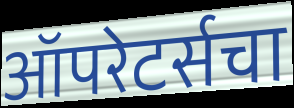
ऑपरेटर्सचा